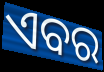
ଏବର